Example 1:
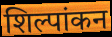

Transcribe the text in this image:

शिल्पांकन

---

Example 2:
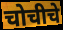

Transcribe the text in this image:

चोचीचे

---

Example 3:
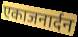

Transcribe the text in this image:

एकाजनार्दन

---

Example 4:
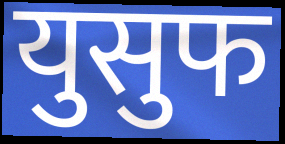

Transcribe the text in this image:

युसुफ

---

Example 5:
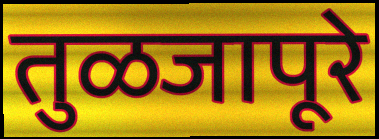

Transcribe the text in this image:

तुळजापूरे